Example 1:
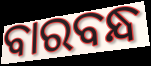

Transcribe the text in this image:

ବାରବନ୍ଧ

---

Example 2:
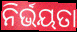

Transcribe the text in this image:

ନିର୍ଭୟତା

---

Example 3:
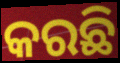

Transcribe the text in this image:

କରଛି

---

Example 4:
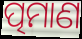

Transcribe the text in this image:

ତ୍ପମାଣ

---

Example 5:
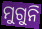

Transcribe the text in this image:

ମୁଗୁନି